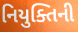
નિયુક્તિની